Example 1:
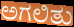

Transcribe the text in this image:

ಅಗಲಿತು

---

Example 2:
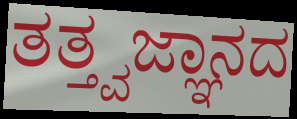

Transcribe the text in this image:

ತತ್ತ್ವಜ್ಞಾನದ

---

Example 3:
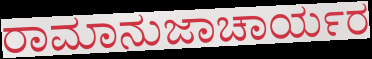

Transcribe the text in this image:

ರಾಮಾನುಜಾಚಾರ್ಯರ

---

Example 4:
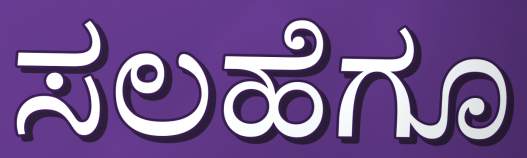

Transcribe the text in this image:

ಸಲಹೆಗೂ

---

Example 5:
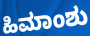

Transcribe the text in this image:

ಹಿಮಾಂಶು